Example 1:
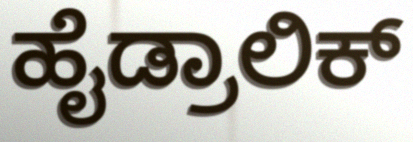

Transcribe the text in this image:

ಹೈಡ್ರಾಲಿಕ್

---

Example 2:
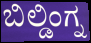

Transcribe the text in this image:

ಬಿಲ್ಡಿಂಗ್ನ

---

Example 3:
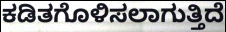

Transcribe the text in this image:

ಕಡಿತಗೊಳಿಸಲಾಗುತ್ತಿದೆ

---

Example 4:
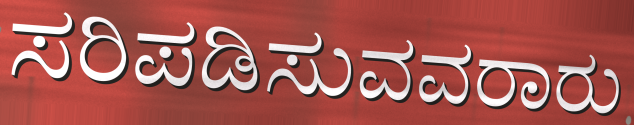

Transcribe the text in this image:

ಸರಿಪಡಿಸುವವರಾರು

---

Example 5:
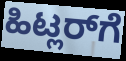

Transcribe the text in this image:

ಹಿಟ್ಲರ್‌ಗೆ